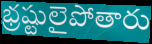
భ్రష్టులైపోతారు